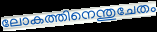
ലോകത്തിനെന്തുചേതം